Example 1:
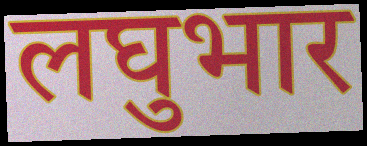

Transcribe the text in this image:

लघुभार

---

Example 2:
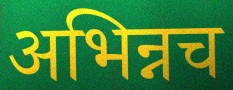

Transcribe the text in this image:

अभिन्नच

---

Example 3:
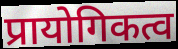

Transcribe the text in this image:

प्रायोगिकत्व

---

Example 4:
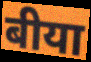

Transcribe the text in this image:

बीया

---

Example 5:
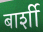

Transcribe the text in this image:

बार्शी